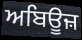
ਅਬਿਊਜ਼